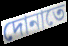
দোনাতে